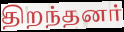
திறந்தனர்